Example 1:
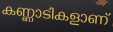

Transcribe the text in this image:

കണ്ണാടികളാണ്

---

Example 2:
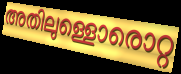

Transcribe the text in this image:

അതിലുള്ളൊരൊറ്റ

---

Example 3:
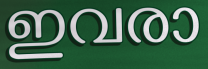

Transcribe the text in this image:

ഇവരാ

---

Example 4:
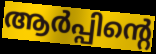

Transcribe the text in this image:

ആർപ്പിന്റെ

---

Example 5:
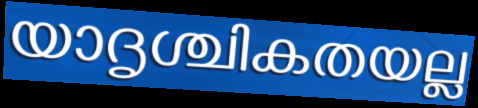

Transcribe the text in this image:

യാദൃശ്ചികതയല്ല